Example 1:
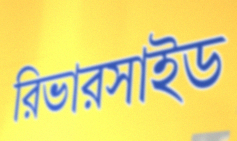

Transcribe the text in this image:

রিভারসাইড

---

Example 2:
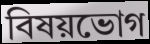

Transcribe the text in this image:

বিষয়ভোগ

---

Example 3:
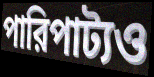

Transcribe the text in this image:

পারিপাট্যও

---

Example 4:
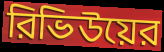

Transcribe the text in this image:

রিভিউয়ের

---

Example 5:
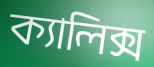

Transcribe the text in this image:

ক্যালিক্স